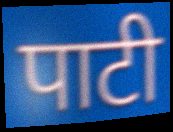
पाटी